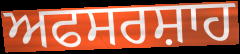
ਅਫਸਰਸ਼ਾਹ